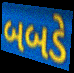
બબડે